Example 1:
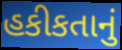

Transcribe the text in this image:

હકીકતાનું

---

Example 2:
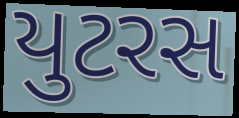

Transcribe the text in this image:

યુટરસ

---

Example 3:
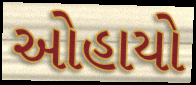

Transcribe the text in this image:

ઓહાયો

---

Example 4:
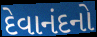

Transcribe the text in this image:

દેવાનંદનો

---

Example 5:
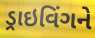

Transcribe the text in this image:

ડ્રાઇવિંગને